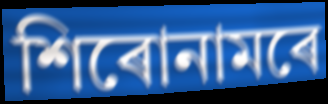
শিৰোনামৰে